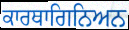
ਕਾਰਥਾਗਿਨਿਅਨ